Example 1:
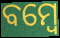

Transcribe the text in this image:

ବମ୍ୱେ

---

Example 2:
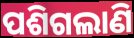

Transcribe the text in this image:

ପଶିଗଲାଣି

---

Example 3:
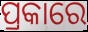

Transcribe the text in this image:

ପ୍ରକାରେ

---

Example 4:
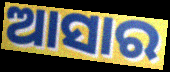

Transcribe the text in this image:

ଆସାର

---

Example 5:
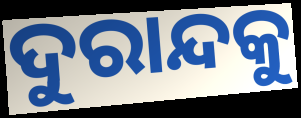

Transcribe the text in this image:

ଦୁରାନ୍ଦକୁ